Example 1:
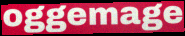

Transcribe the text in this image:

oggemage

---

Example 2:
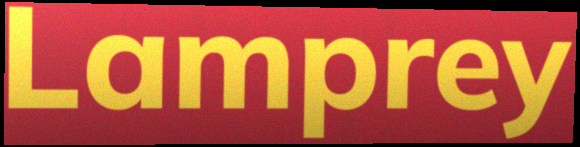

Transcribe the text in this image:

Lamprey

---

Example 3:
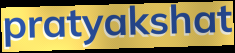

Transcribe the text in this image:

pratyakshat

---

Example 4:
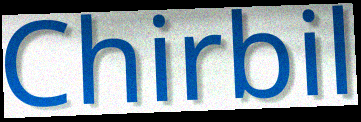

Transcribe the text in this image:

Chirbil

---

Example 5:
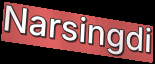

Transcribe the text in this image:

Narsingdi